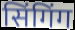
सिंगिंग